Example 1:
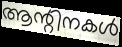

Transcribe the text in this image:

ആന്റിനകൾ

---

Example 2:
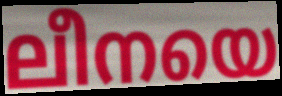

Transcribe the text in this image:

ലീനയെ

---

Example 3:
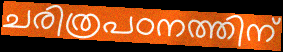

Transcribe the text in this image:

ചരിത്രപഠനത്തിന്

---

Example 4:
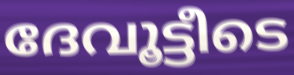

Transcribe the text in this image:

ദേവൂട്ടീടെ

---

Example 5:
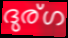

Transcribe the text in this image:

ദുര്ഗ